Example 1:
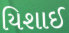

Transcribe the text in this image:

યિશાઈ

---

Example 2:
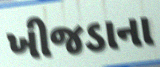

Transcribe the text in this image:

ખીજડાના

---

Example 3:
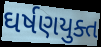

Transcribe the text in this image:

ઘર્ષણયુક્ત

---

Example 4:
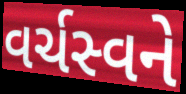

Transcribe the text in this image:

વર્ચસ્વને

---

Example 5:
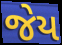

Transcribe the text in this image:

જેય